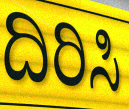
ದಿರಿಸಿ